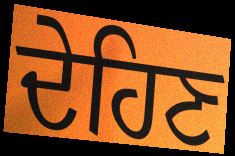
ਦੇਹਿਣ